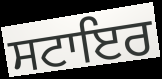
ਸਟਾਇਰ